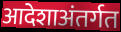
आदेशाअंतर्गत